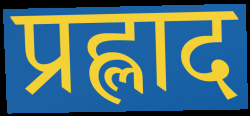
प्रह्लाद